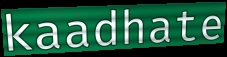
kaadhate